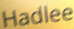
Hadlee